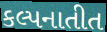
કલ્પનાતીત